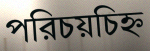
পরিচয়চিহ্ন